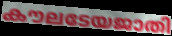
കൗലടേയജാതി